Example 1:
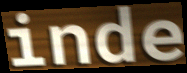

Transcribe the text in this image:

inde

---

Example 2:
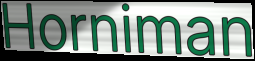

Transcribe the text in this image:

Horniman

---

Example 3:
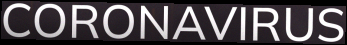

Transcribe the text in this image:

CORONAVIRUS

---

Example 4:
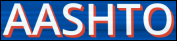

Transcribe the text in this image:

AASHTO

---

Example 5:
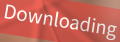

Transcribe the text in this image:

Downloading